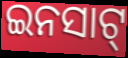
ଇନସାଟ୍